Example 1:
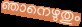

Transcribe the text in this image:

ഞാനെഴുതും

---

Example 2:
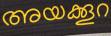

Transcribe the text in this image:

അയക്കൂറ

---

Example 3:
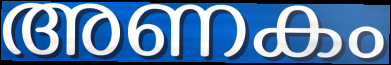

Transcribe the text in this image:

അണകം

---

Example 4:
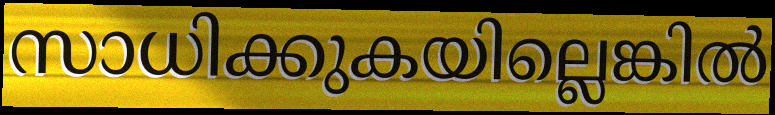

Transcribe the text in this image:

സാധിക്കുകയില്ലെങ്കിൽ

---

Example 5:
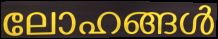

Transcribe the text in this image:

ലോഹങ്ങൾ